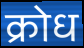
क्रोध